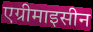
एग्रीमाइसीन